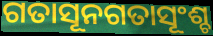
ଗତାସୂନଗତାସୂଂଶ୍ଚ